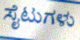
ಸೈಟುಗಳು